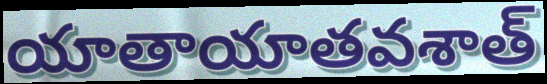
యాతాయాతవశాత్